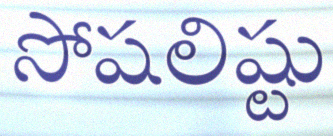
సోషలిష్టు